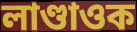
লাণ্ডাওক